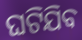
ଘଟିଯିବ